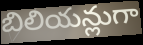
బిలియన్లుగా